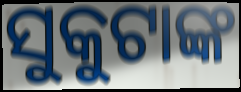
ସୁକୁଟାଙ୍କ